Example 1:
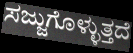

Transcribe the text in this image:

ಸಜ್ಜುಗೊಳ್ಳುತ್ತದೆ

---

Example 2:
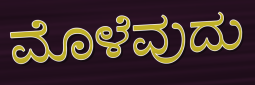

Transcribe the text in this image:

ಮೊಳೆವುದು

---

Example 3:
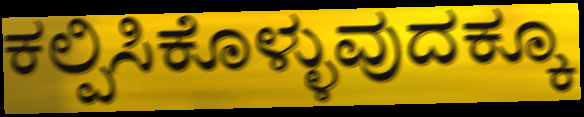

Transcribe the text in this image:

ಕಲ್ಪಿಸಿಕೊಳ್ಳುವುದಕ್ಕೂ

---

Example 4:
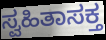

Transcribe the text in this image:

ಸ್ವಹಿತಾಸಕ್ತ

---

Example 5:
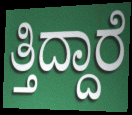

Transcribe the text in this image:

ತ್ತಿದ್ದಾರೆ